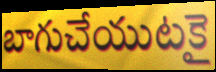
బాగుచేయుటకై